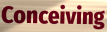
Conceiving